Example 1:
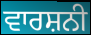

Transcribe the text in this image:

ਵਾਰਸ਼ਨੀ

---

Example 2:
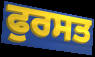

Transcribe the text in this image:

ਫੁਰਸਤ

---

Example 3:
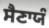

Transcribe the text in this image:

ਸੈਣਾਯੰ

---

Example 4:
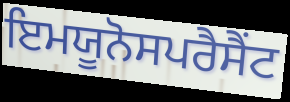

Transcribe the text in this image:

ਇਮਯੂਨੋਸਪਰੈਸੈਂਟ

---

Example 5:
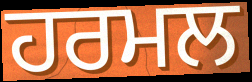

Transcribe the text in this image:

ਹਰਮਲ